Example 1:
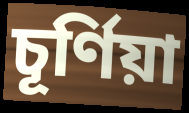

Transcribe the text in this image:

চূর্ণিয়া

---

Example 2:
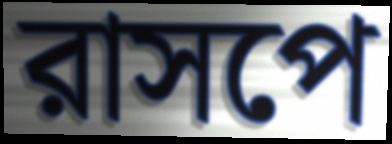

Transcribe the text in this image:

রাসপে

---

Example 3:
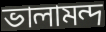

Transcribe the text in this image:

ভালামন্দ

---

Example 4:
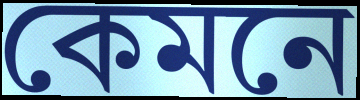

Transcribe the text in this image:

কেমনে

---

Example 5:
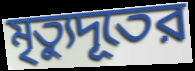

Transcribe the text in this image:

মৃত্যুদূতের